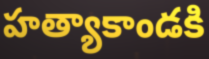
హత్యాకాండకి